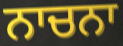
ਨਾਚਨਾ